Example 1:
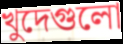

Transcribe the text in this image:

খুদেগুলো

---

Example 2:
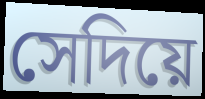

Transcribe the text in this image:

সেদিয়ে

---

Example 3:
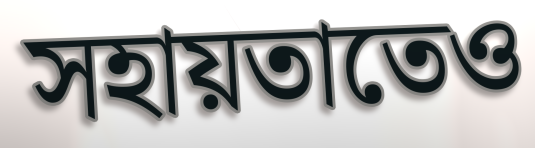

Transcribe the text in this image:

সহায়তাতেও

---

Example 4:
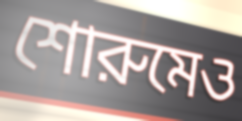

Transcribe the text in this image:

শোরুমেও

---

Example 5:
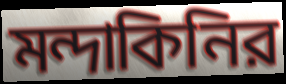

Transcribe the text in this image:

মন্দাকিনির